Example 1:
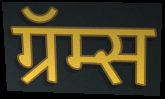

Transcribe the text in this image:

ग्रॅम्स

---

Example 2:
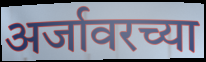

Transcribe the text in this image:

अर्जावरच्या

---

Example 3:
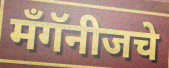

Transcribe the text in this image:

मँगॅनीजचे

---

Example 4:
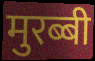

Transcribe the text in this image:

मुरब्बी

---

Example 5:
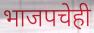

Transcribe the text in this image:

भाजपचेही